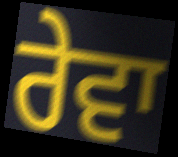
ਰੇਵਾ